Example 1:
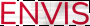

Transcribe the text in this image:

ENVIS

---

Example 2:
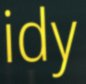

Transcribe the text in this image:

idy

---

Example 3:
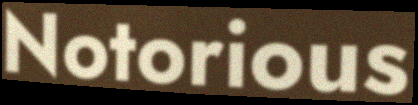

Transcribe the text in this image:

Notorious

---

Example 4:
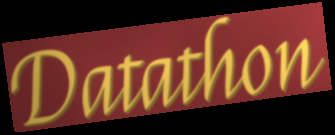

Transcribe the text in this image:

Datathon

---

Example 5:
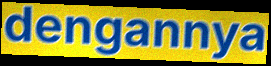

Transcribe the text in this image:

dengannya